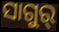
ସାଗୁର୍